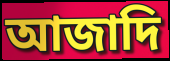
আজাদি